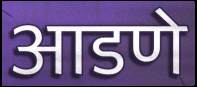
आडणे